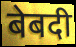
बेबदी